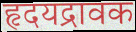
हृदयद्रावक